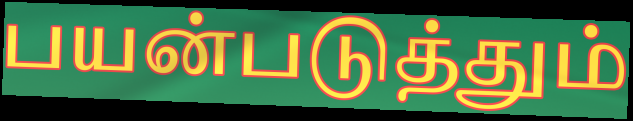
பயன்படுத்தும்